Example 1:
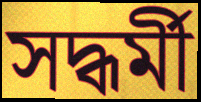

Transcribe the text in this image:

সদ্ধর্মী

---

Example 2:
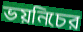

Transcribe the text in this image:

ভয়নিচের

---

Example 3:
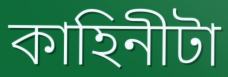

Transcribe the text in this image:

কাহিনীটা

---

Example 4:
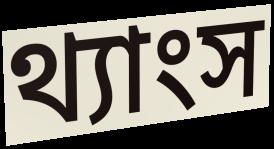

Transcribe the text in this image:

থ্যাংস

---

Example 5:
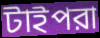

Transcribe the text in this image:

টাইপরা